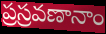
ప్రస్రవణానాం